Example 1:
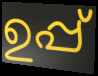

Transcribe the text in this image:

ഉപ്പ്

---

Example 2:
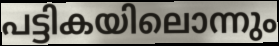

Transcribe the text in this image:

പട്ടികയിലൊന്നും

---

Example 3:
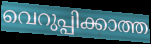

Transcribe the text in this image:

വെറുപ്പിക്കാത്ത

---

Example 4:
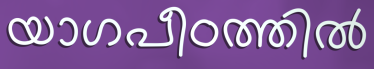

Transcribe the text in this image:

യാഗപീഠത്തിൽ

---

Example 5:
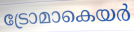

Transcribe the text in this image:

ട്രോമാകെയർ